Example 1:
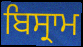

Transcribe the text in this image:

ਬਿਸ੍ਰਾਮ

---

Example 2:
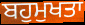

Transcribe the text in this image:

ਬਹੁਮੁਖਤਾ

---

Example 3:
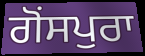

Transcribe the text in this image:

ਗੋਂਸਪੁਰਾ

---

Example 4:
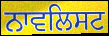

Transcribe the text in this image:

ਨਾਵਲਿਸਟ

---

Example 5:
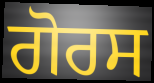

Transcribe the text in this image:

ਗੋਰਸ